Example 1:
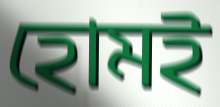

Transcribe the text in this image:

হোমই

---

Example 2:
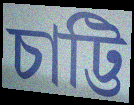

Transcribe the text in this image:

চাট্টি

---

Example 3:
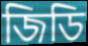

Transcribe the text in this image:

জিডি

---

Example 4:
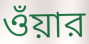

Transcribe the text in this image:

ওঁয়ার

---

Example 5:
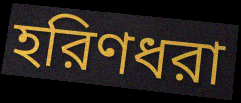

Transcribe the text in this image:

হরিণধরা